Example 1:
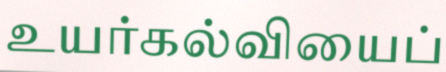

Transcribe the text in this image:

உயர்கல்வியைப்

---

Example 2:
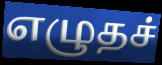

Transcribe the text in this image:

எழுதச்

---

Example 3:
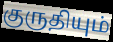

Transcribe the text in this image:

குருதியும்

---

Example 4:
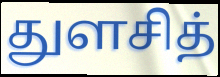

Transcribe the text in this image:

துளசித்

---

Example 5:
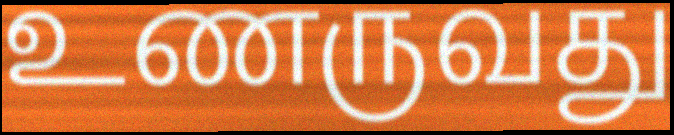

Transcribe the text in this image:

உணருவது